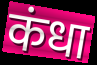
कंधा